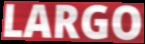
LARGO